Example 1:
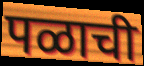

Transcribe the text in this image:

पळाची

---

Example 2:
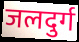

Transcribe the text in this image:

जलदुर्ग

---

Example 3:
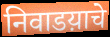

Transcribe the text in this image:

निवाडय़ाचे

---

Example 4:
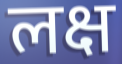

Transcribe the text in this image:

लक्ष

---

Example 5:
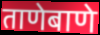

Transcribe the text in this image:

ताणेबाणे